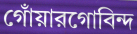
গোঁয়ারগোবিন্দ